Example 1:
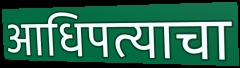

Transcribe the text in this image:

आधिपत्याचा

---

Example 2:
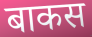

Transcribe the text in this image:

बाकस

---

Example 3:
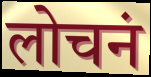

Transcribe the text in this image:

लोचनं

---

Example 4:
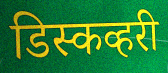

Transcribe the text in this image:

डिस्कव्हरी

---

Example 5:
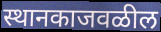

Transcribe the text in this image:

स्थानकाजवळील